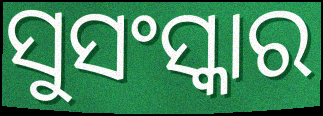
ସୁସଂସ୍କାର